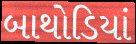
બાથોડિયાં